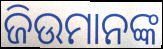
ଜିଉମାନଙ୍କ